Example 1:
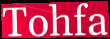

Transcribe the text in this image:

Tohfa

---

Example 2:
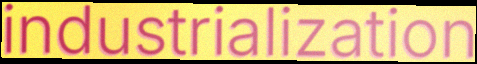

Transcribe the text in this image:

industrialization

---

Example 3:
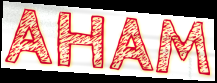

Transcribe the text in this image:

AHAM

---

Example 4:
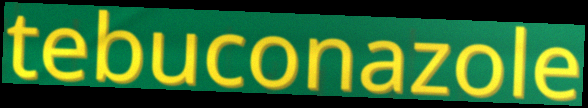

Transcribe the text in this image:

tebuconazole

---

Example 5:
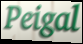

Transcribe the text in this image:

Peigal